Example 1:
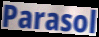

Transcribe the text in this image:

Parasol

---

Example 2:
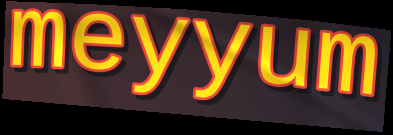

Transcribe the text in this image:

meyyum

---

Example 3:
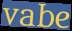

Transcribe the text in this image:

vabe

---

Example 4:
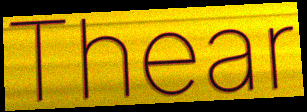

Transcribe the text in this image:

Thear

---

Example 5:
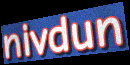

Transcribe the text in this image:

nivdun